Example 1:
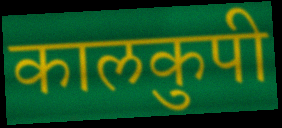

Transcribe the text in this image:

कालकुपी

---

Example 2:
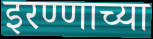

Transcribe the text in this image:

इरण्णाच्या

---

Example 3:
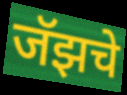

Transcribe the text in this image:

जॅझचे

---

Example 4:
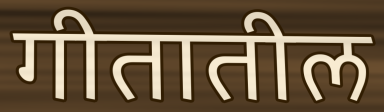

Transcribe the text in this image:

गीतातील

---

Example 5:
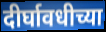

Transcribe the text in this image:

दीर्घावधीच्या